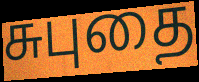
சுபுதை